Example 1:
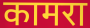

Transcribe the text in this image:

कामरा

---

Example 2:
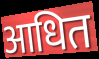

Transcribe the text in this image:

आधित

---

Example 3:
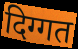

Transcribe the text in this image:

दिग्गत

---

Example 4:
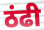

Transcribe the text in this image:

ठंढी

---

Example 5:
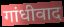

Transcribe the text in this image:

गांधीवाद